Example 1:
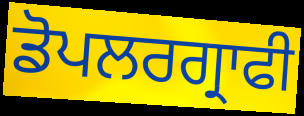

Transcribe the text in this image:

ਡੋਪਲਰਗ੍ਰਾਫੀ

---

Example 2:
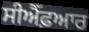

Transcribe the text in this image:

ਸੀਐੱਫ਼ਆਰ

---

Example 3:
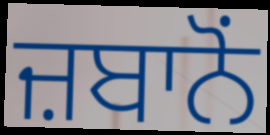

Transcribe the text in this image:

ਜ਼ਬਾਨੋਂ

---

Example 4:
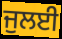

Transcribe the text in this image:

ਜੁਲਈ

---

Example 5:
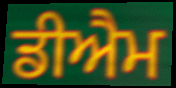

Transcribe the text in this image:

ਡੀਐਮ